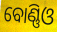
ବୋଣ୍ଣିଓ